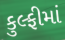
કુલ્ફીમાં